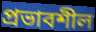
প্রভাবশীল